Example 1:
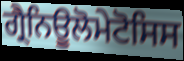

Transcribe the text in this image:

ਗ੍ਰੈਨਿਊਲੋਮੇਟੋਸਿਸ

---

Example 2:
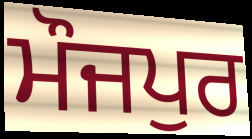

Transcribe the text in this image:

ਮੌਜਪੁਰ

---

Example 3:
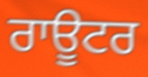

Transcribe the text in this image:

ਰਾਊਟਰ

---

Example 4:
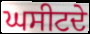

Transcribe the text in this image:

ਘਸੀਟਦੇ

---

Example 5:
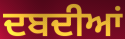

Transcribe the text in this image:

ਦਬਦੀਆਂ